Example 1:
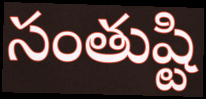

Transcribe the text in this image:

సంతుష్టి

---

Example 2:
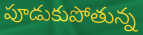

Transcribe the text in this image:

పూడుకుపోతున్న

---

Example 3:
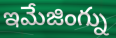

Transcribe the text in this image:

ఇమేజింగ్ను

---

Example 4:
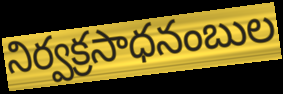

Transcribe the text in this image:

నిర్వక్రసాధనంబుల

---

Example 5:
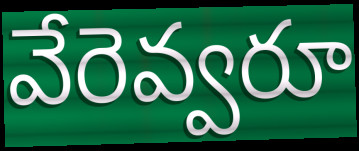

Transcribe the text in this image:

వేరెవ్వరూ